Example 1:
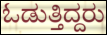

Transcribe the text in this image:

ಓಡುತ್ತಿದ್ದರು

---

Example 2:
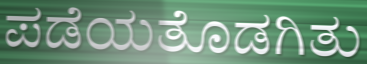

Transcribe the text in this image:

ಪಡೆಯತೊಡಗಿತು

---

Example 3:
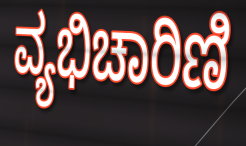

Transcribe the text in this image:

ವ್ಯಭಿಚಾರಿಣಿ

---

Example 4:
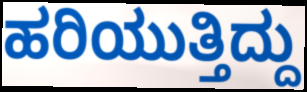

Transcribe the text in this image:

ಹರಿಯುತ್ತಿದ್ದು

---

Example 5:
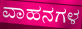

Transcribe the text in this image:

ವಾಹನಗಳ